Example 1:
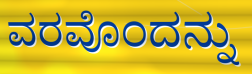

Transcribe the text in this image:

ವರವೊಂದನ್ನು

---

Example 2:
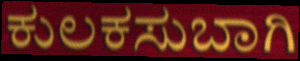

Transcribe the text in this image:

ಕುಲಕಸುಬಾಗಿ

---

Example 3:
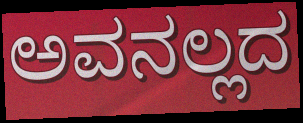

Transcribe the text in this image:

ಅವನಲ್ಲದ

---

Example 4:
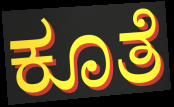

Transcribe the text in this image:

ಕೂತೆ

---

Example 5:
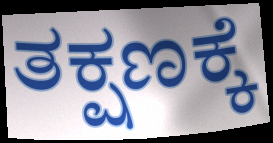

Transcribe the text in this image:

ತಕ್ಷಣಕ್ಕೆ